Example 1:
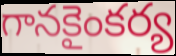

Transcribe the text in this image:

గానకైంకర్య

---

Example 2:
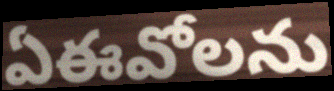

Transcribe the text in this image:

ఏఈవోలను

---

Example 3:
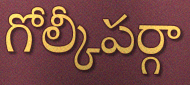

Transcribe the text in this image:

గోల్కీపర్గా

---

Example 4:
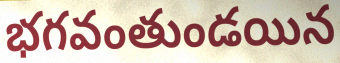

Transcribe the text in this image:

భగవంతుండయిన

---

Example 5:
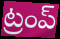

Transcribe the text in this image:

ట్రంప్